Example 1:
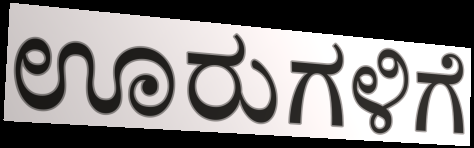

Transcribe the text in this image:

ಊರುಗಳಿಗೆ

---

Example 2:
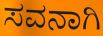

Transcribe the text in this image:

ಸವನಾಗಿ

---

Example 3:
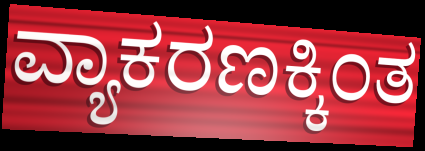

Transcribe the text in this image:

ವ್ಯಾಕರಣಕ್ಕಿಂತ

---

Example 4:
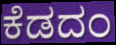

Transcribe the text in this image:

ಕೆಡದಂ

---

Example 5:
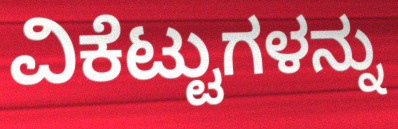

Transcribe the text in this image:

ವಿಕೆಟ್ಟುಗಳನ್ನು